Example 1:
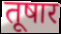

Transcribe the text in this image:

तूषार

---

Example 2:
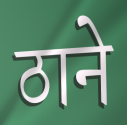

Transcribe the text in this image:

ठाने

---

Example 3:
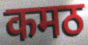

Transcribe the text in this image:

कमठ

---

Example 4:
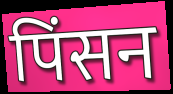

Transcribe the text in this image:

पिंसन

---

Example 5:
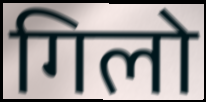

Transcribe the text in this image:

गिलो